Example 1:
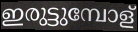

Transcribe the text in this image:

ഇരുട്ടുമ്പോള്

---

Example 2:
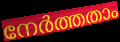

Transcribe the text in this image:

നേർത്തതാം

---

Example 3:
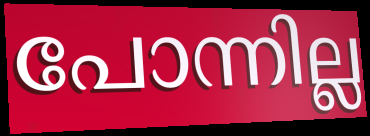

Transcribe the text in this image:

പോന്നില്ല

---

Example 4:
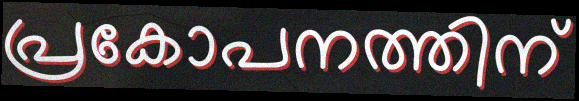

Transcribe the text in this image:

പ്രകോപനത്തിന്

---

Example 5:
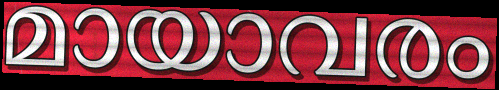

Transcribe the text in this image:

മായാവരം